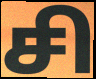
சி